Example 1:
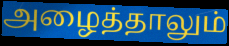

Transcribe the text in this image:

அழைத்தாலும்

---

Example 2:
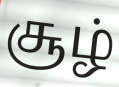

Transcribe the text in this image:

சூழ்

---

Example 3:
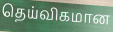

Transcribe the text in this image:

தெய்விகமான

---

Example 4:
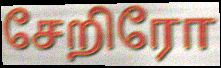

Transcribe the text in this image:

சேறிரோ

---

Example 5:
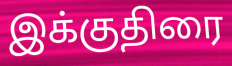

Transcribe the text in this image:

இக்குதிரை